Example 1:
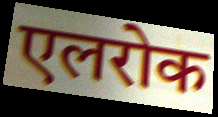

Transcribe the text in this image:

एलरोक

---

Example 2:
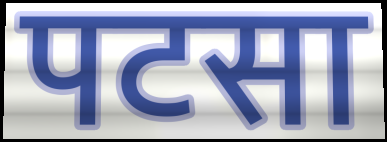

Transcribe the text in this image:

पटसा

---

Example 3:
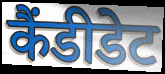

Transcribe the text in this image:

कैंडीडेट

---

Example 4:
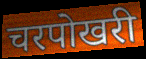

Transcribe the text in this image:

चरपोखरी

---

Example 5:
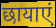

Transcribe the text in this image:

छायाएं